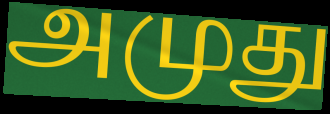
அமுது